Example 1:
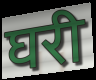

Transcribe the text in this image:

घरी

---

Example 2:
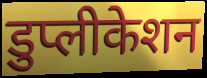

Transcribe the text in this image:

डुप्लीकेशन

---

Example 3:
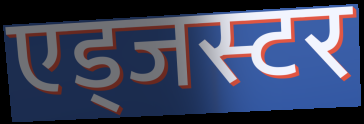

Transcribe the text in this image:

एड्जस्टर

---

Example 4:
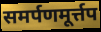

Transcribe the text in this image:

समर्पणमूर्त्तप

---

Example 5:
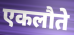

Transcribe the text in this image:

एकलौते